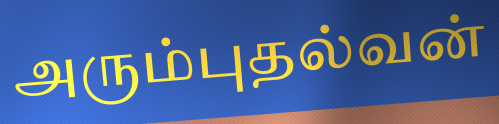
அரும்புதல்வன்